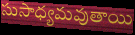
సుసాధ్యమవుతాయి